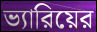
ভ্যারিয়ের